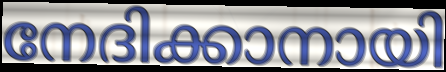
നേദിക്കാനായി